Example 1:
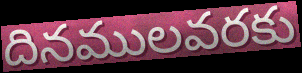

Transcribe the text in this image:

దినములవరకు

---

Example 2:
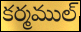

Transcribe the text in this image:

కర్మముల్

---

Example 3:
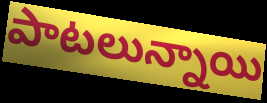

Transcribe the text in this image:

పాటలున్నాయి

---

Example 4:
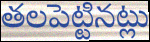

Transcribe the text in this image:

తలపెట్టినట్లు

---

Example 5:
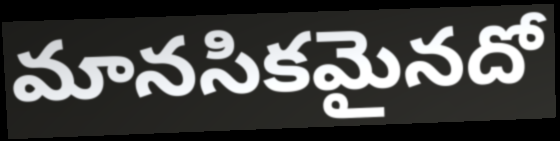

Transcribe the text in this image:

మానసికమైనదో